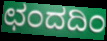
ಛಂದದಿಂ